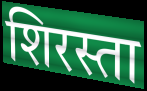
शिरस्ता